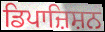
ਡਿਪਾਜ਼ਿਸ਼ਨ